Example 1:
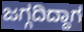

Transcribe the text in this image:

ಜಗ್ಗದಿದ್ದಾಗ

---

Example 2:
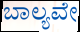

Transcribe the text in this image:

ಬಾಲ್ಯವೇ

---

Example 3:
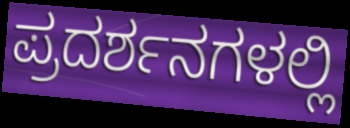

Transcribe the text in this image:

ಪ್ರದರ್ಶನಗಳಲ್ಲಿ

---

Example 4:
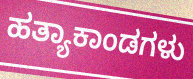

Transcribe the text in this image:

ಹತ್ಯಾಕಾಂಡಗಳು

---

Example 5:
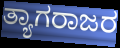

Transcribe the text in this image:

ತ್ಯಾಗರಾಜರ